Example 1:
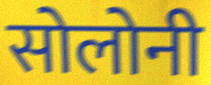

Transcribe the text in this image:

सोलोनी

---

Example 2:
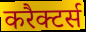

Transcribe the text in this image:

करैक्टर्स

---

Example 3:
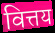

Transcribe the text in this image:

वित्तय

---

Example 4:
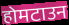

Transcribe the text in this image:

होमटाउन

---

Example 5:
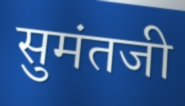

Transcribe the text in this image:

सुमंतजी